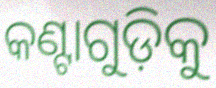
କଣ୍ଟାଗୁଡ଼ିକୁ